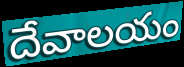
దేవాలయం